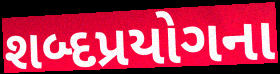
શબ્દપ્રયોગના